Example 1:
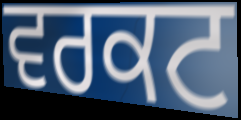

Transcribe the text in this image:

ਵਰਕਟ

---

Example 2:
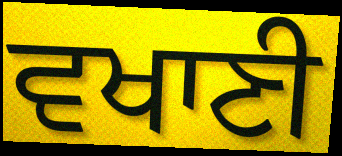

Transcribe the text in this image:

ਵਖਾਣੀ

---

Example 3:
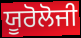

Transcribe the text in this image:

ਯੂਰੋਲੋਜੀ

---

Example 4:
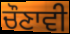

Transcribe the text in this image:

ਚੌਣਾਵੀ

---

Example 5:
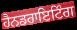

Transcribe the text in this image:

ਹੈਨਡਰਾਇਟਿੰਗ